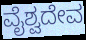
ವೈಶ್ವದೇವ